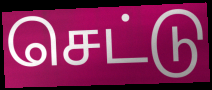
செட்டு